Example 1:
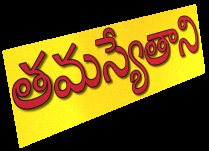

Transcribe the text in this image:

తమస్యేతాని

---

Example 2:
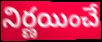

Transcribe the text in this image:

నిర్ణయించే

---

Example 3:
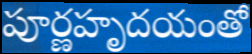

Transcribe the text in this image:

పూర్ణహృదయంతో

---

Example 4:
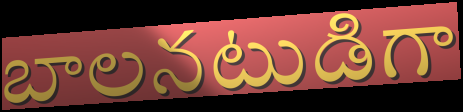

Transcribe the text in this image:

బాలనటుడిగా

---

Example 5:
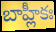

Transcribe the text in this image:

బాహ్లీకః